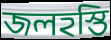
জলহস্তি